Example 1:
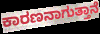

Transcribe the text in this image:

ಕಾರಣನಾಗುತ್ತಾನೆ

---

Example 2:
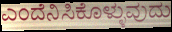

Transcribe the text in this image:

ಎಂದೆನಿಸಿಕೊಳ್ಳುವುದು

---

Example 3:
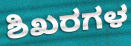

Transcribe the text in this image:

ಶಿಖರಗಳ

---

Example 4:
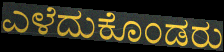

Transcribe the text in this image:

ಎಳೆದುಕೊಂಡರು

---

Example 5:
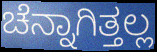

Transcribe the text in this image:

ಚೆನ್ನಾಗಿತ್ತಲ್ಲ